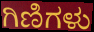
ಗಿಣಿಗಳು